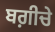
ਬਗ਼ੀਚੇ